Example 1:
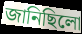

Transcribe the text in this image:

জানিছিলো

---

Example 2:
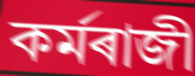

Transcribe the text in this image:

কৰ্মৰাজী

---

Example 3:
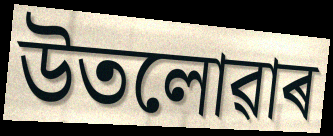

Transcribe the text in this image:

উতলোৱাৰ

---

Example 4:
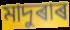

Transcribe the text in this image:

মাদুৰাৰ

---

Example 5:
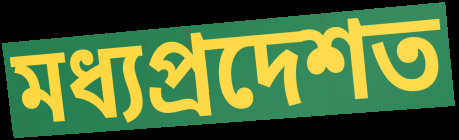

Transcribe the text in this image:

মধ্যপ্ৰদেশত